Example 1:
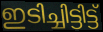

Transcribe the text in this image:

ഇടിച്ചിട്ടിട്ട്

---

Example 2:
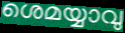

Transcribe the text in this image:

ശെമയ്യാവു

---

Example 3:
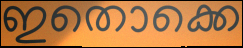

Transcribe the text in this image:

ഇതൊക്കെ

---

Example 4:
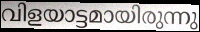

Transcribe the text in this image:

വിളയാട്ടമായിരുന്നു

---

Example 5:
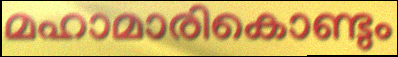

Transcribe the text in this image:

മഹാമാരികൊണ്ടും